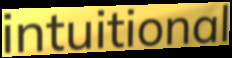
intuitional